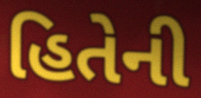
હિતેની